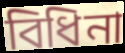
বিধিনা